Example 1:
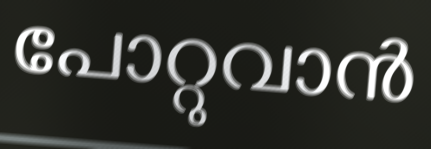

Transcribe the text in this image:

പോറ്റുവാൻ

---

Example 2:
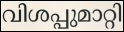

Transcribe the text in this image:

വിശപ്പുമാറ്റി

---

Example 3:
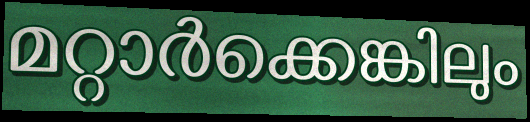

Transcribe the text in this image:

മറ്റാർക്കെങ്കിലും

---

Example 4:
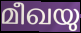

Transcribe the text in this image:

മീഖയു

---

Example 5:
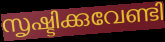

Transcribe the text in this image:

സൃഷ്ടിക്കുവേണ്ടി